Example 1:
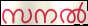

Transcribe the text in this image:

സനൽ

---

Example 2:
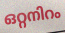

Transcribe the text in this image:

ഒറ്റനിറം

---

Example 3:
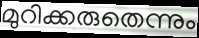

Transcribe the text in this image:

മുറിക്കരുതെന്നും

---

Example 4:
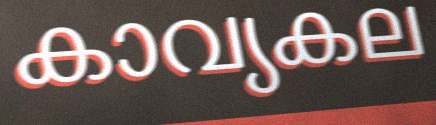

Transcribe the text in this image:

കാവ്യകല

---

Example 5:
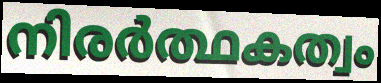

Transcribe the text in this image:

നിരർത്ഥകത്വം